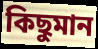
কিছুমান